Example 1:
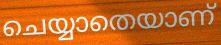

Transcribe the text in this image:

ചെയ്യാതെയാണ്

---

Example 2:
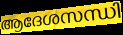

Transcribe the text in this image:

ആദേശസന്ധി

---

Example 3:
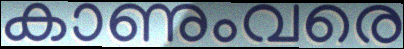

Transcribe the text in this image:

കാണുംവരെ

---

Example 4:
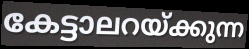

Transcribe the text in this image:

കേട്ടാലറയ്ക്കുന്ന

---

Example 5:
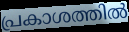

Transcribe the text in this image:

പ്രകാശത്തിൽ